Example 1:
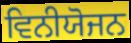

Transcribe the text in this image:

ਵਿਨੀਯੋਜਨ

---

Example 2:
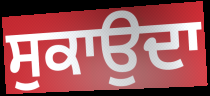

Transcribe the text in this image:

ਸੁਕਾਉਦਾ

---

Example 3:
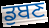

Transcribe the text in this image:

ਡੁਬਣ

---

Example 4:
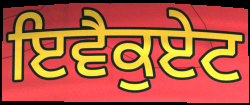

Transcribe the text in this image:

ਇਵੈਕੁਏਟ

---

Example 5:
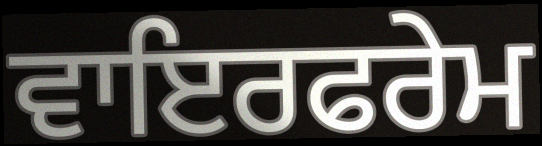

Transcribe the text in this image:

ਵਾਇਰਫਰੇਮ